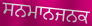
ਸਨਮਾਨਜਨਕ